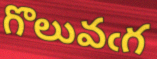
గొలువఁగ